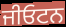
ਜੀਓਟਨ